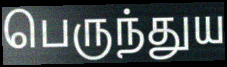
பெருந்துய